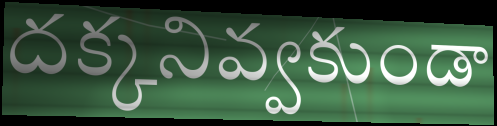
దక్కనివ్వకుండా